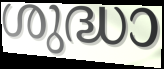
ശുദ്ധാ